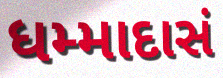
ધમ્માદાસં